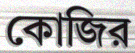
কোজির